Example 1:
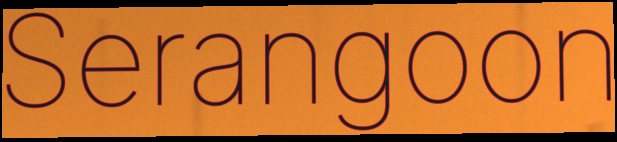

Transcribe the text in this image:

Serangoon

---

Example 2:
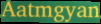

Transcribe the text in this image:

Aatmgyan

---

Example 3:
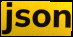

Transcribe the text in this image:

json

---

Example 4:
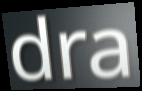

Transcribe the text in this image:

dra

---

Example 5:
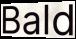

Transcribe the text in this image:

Bald